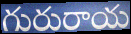
గురురాయ